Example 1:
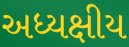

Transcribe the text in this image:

અધ્યક્ષીય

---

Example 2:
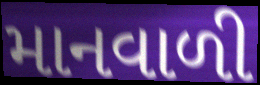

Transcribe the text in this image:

માનવાળી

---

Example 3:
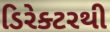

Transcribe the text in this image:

ડિરેક્ટરથી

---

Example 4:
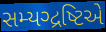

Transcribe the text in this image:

સમ્યગ્દ્રષ્ટિએ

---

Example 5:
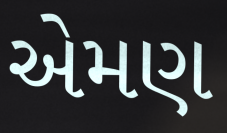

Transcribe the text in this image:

એમણ